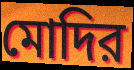
মোদির